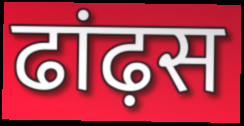
ढांढ़स